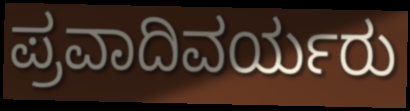
ಪ್ರವಾದಿವರ್ಯರು